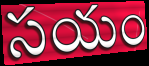
సయం